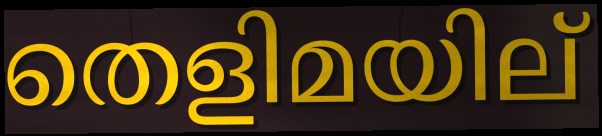
തെളിമയില്